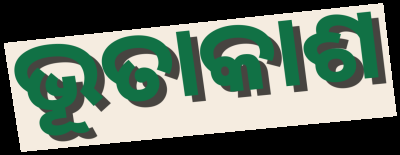
ଭୂତାକାଶ